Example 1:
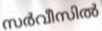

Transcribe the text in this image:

സർവീസിൽ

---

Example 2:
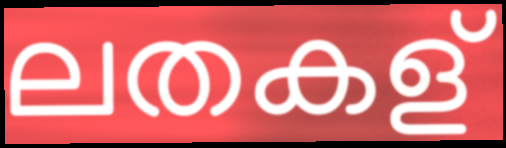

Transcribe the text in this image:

ലതകള്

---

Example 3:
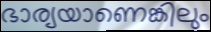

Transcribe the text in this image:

ഭാര്യയാണെങ്കിലും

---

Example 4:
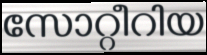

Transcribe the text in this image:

സോറ്റീറിയ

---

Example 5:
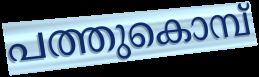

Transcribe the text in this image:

പത്തുകൊമ്പ്